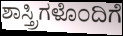
ಶಾಸ್ತ್ರಿಗಳೊಂದಿಗೆ